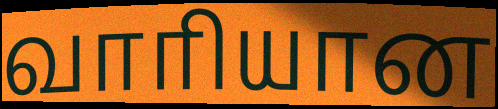
வாரியான